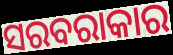
ସରବରାକାର